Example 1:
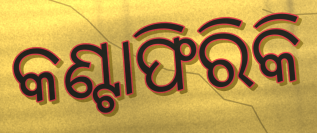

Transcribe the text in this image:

କଣ୍ଟାଫିରିକି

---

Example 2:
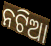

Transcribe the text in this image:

ନଟିଆ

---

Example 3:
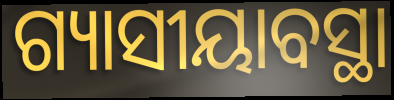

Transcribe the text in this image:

ଗ୍ୟାସୀୟାବସ୍ଥା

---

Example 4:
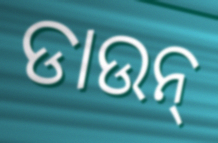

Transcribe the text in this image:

ଡାଉନ୍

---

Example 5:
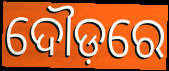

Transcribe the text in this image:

ଦୌଡ଼ରେ